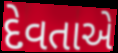
દેવતાએ